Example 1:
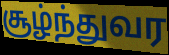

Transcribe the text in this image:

சூழ்ந்துவர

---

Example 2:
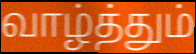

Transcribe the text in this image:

வாழ்த்தும்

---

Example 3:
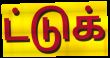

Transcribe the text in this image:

ட்டுக்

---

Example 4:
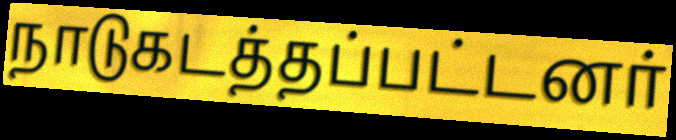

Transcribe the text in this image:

நாடுகடத்தப்பட்டனர்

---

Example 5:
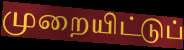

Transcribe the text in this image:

முறையிட்டுப்